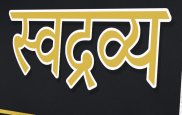
स्वद्रव्य